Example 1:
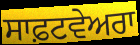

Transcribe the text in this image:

ਸਾਫ਼ਟਵੇਅਰਾ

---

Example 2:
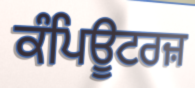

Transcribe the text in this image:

ਕੰਪਿਊਟਰਜ਼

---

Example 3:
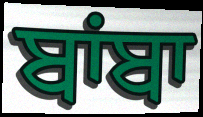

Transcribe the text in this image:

ਬਾਂਬਾ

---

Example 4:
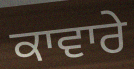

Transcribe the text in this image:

ਕਾਵਾਰੇ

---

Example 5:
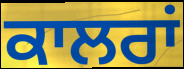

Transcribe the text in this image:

ਕਾਲਰਾਂ